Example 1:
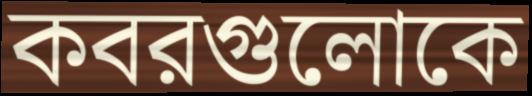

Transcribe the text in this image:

কবরগুলোকে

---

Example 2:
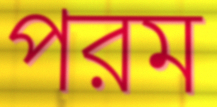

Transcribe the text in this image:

পরম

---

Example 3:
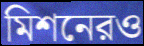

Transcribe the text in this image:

মিশনেরও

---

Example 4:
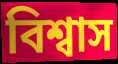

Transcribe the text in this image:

বিশ্বাস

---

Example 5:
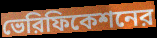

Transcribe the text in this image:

ভেরিফিকেশনের